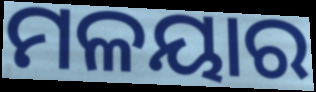
ମଳୟାର